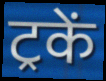
ट्रकें